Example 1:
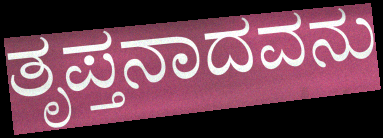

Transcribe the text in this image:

ತೃಪ್ತನಾದವನು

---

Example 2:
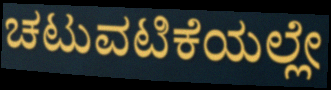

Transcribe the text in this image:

ಚಟುವಟಿಕೆಯಲ್ಲೇ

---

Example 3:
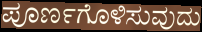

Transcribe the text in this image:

ಪೂರ್ಣಗೊಳಿಸುವುದು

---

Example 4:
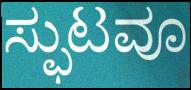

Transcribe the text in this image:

ಸ್ಫುಟವೂ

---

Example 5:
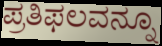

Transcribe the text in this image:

ಪ್ರತಿಫಲವನ್ನೂ